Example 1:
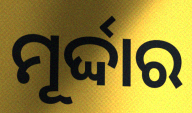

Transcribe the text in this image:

ମୂର୍ଦ୍ଦାର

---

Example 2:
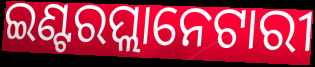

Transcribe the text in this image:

ଇଣ୍ଟରପ୍ଲାନେଟାରୀ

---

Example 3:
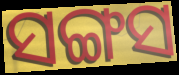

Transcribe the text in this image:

ସଙ୍ଗସ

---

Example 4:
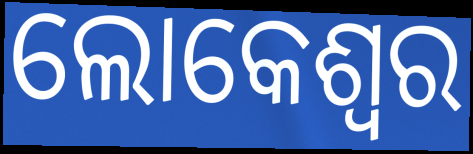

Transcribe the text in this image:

ଲୋକେଶ୍ୱର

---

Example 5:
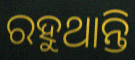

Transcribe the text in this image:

ରହୁଥାନ୍ତି